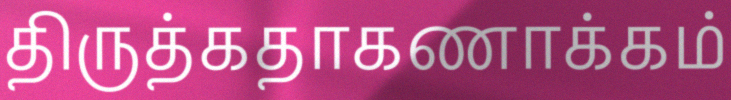
திருத்கதாகணாக்கம்